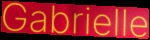
Gabrielle